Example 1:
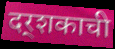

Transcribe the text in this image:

दर्शकाची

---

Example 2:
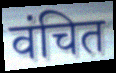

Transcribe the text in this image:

वंचित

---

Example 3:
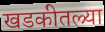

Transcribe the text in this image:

खडकीतल्या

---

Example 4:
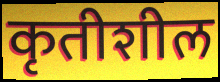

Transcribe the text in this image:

कृतीशील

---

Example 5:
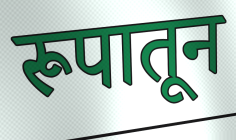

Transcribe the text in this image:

रूपातून